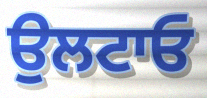
ਉਲਟਾਓ